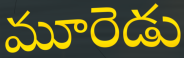
మూరెడు